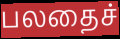
பலதைச்